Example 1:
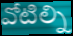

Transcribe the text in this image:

వోటిల్ని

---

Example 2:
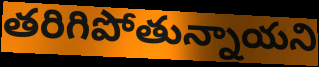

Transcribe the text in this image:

తరిగిపోతున్నాయని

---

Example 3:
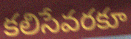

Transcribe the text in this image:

కలిసేవరకూ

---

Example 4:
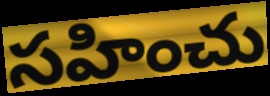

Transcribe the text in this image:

సహించు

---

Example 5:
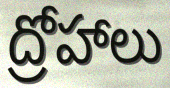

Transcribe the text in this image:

ద్రోహాలు